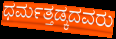
ಧರ್ಮತ್ತಡ್ಕದವರು